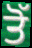
ਤੋੱ